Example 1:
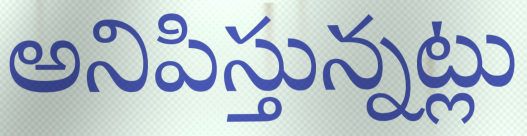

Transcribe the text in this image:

అనిపిస్తున్నట్లు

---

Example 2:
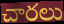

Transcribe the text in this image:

చారలు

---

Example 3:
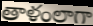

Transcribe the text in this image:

తాళంలాగా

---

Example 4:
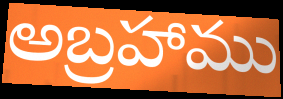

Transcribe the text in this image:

అబ్రహాము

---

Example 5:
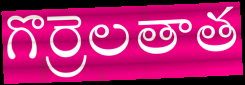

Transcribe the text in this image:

గొర్రెలతాత